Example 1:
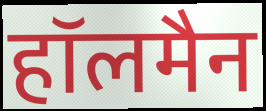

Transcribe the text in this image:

हॉलमैन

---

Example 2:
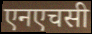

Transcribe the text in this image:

एनएचसी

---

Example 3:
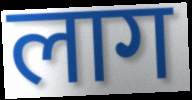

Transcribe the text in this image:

लाग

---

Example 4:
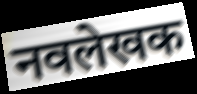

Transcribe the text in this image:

नवलेखक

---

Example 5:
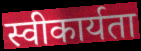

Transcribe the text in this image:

स्वीकार्यता